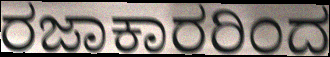
ರಜಾಕಾರರಿಂದ